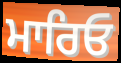
ਮਾਰਿਓ